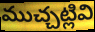
ముచ్చట్లివి